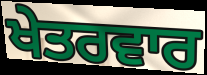
ਖੇਤਰਵਾਰ